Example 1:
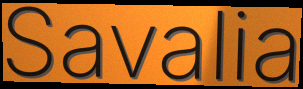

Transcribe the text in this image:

Savalia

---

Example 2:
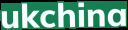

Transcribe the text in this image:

ukchina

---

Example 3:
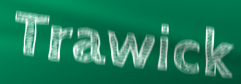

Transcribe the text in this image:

Trawick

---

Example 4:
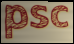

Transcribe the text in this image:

psc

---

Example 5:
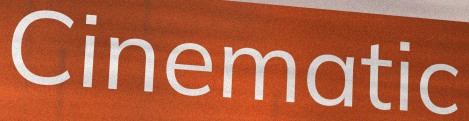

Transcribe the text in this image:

Cinematic